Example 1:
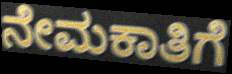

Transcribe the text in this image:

ನೇಮಕಾತಿಗೆ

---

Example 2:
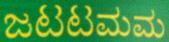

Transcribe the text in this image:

ಜಟಟಮಮ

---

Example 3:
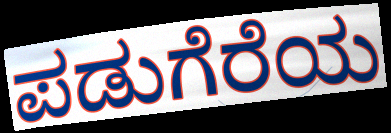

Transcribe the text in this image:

ಪಡುಗೆರೆಯ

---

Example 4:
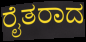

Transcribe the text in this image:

ರೈತರಾದ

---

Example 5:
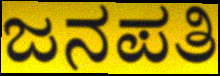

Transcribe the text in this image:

ಜನಪತಿ